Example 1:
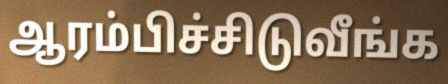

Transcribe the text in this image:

ஆரம்பிச்சிடுவீங்க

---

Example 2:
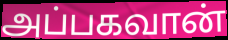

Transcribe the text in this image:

அப்பகவான்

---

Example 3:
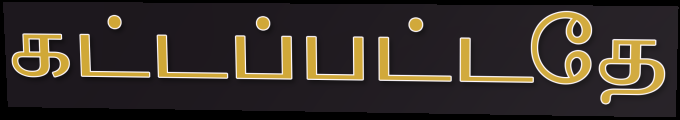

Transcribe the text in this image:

கட்டப்பட்டதே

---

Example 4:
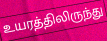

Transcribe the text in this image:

உயரத்திலிருந்து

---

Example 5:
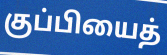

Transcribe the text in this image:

குப்பியைத்